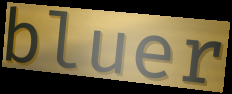
bluer